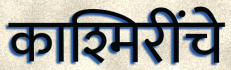
काश्मिरींचे